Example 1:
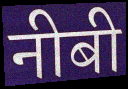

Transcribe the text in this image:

नीबी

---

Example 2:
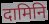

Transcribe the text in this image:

दामिनि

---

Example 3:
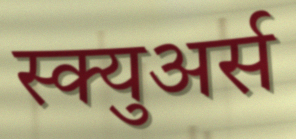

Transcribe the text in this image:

स्क्युअर्स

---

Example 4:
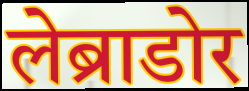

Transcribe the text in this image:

लेब्राडोर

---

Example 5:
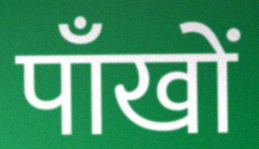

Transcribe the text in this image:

पाँखों